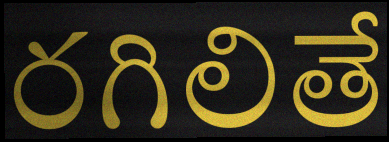
రగిలితే